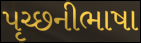
પૃચ્છનીભાષા